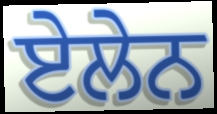
ਏਲੇਨ